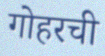
गोहरची